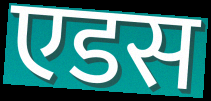
एडस